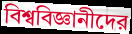
বিশ্ববিজ্ঞানীদের